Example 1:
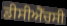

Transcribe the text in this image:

ਡੀਸੀਐੱਚਸੀ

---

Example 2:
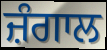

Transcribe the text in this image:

ਜ਼ੰਗਾਲ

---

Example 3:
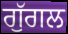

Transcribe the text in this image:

ਗੁੱਗਲ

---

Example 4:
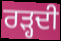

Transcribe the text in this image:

ਰੜ੍ਹਦੀ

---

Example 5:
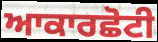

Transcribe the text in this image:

ਆਕਾਰਛੋਟੀ